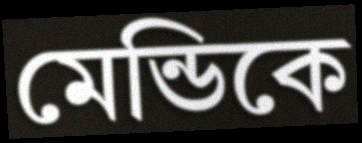
মেন্ডিকে